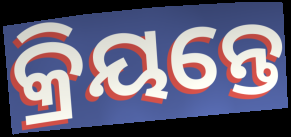
କ୍ରିୟନ୍ତେ